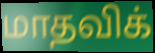
மாதவிக்